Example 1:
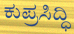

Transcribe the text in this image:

ಕುಪ್ರಸಿದ್ಧಿ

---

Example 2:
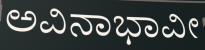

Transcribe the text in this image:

ಅವಿನಾಭಾವೀ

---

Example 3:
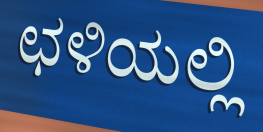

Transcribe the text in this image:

ಛಳಿಯಲ್ಲಿ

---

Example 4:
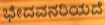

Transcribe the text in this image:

ಭೇದವನರಿಯದೆ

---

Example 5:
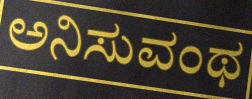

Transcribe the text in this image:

ಅನಿಸುವಂಥ